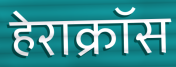
हेराक्रॉस